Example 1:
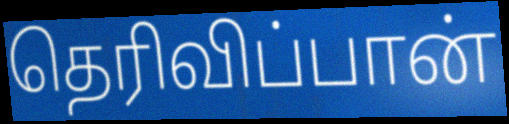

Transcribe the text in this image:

தெரிவிப்பான்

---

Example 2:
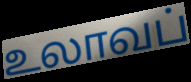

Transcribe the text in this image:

உலாவப்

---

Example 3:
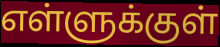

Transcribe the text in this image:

எள்ளுக்குள்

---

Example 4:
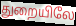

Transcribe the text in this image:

துறையிலே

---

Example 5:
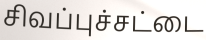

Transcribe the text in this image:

சிவப்புச்சட்டை